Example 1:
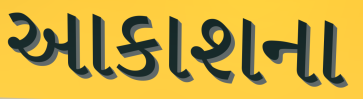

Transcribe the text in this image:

આકાશના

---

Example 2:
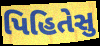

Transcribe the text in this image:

પિહિતેસુ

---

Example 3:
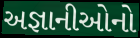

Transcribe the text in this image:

અજ્ઞાનીઓનો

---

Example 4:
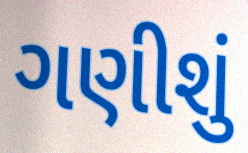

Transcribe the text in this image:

ગણીશું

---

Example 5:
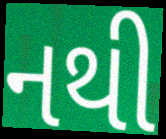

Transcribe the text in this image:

નથી